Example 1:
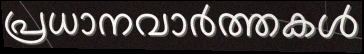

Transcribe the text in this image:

പ്രധാനവാർത്തകൾ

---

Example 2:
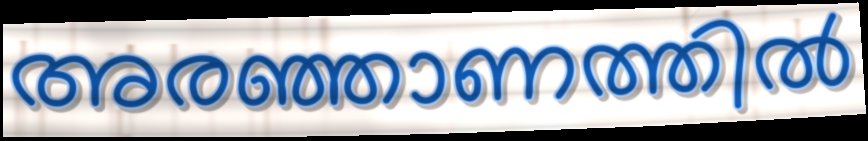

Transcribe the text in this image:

അരഞ്ഞാണത്തിൽ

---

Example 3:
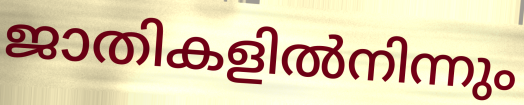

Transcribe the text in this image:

ജാതികളിൽനിന്നും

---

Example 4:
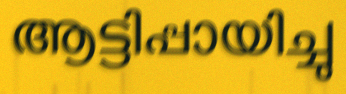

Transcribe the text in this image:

ആട്ടിപ്പായിച്ചു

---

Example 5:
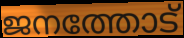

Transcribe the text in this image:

ജനത്തോട്